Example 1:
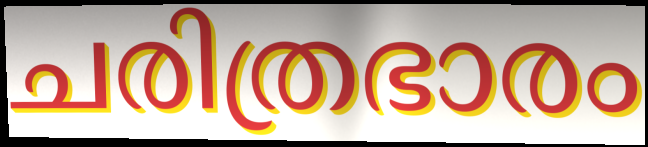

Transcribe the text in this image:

ചരിത്രഭാരം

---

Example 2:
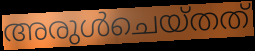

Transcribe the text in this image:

അരുൾചെയ്തത്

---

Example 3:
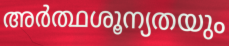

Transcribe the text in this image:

അർത്ഥശൂന്യതയും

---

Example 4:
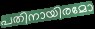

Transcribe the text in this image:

പതിനായിരമോ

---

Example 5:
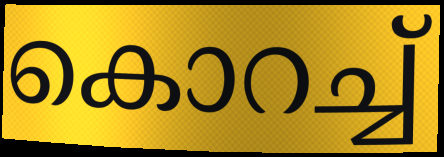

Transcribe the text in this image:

കൊറച്ച്